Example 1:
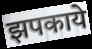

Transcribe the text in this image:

झपकाये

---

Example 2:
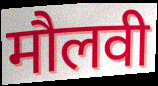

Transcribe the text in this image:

मौलवी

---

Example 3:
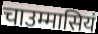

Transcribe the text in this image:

चाउम्मासियं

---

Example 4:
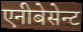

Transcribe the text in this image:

एनीबेसेन्ट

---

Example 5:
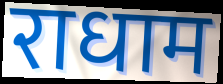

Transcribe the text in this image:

राधाम